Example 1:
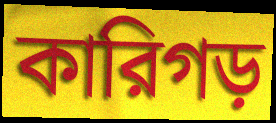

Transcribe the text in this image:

কারিগড়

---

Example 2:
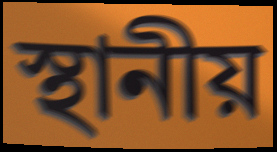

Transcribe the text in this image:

স্থানীয়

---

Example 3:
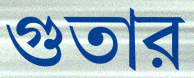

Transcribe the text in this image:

গুতার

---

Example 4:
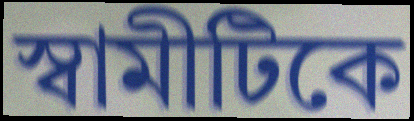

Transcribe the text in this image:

স্বামীটিকে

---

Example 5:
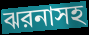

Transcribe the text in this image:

ঝরনাসহ